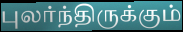
புலர்ந்திருக்கும்